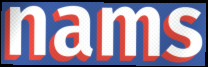
nams